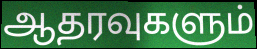
ஆதரவுகளும்